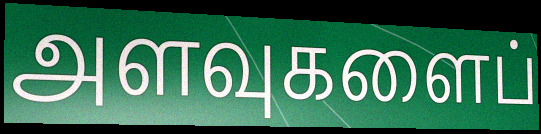
அளவுகளைப்